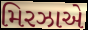
મિરઝાએ